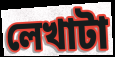
লেখাটা